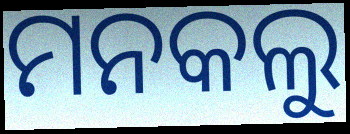
ମନକଲୁ